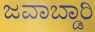
ಜವಾಬ್ಡಾರಿ